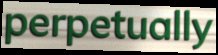
perpetually